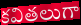
కవితలుగా